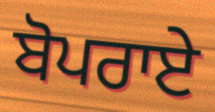
ਬੋਪਰਾਏ